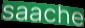
saache